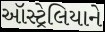
ઑસ્ટ્રેલિયાને